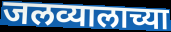
जलव्यालाच्या